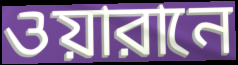
ওয়ারানে